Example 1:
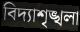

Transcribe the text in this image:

বিদ্যাশৃঙ্খলা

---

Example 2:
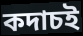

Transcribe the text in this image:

কদাচই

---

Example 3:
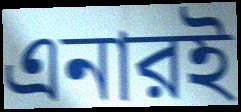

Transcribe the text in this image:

এনারই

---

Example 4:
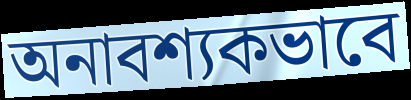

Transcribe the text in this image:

অনাবশ্যকভাবে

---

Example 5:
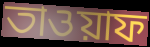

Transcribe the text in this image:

তাওয়াফ